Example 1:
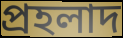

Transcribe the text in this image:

প্রহলাদ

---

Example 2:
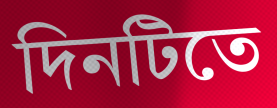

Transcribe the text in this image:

দিনটিতে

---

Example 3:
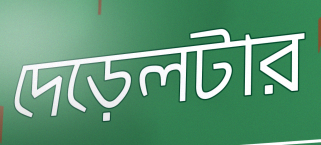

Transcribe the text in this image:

দেড়েলটার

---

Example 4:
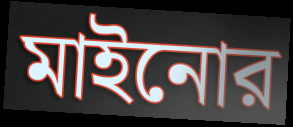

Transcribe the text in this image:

মাইনোর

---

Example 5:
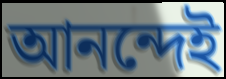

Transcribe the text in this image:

আনন্দেই